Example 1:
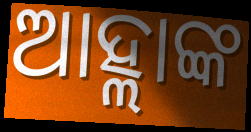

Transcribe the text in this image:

ଆହ୍ଲାଙ୍କ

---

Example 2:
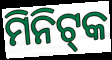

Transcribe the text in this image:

ମିନିଟ୍‍କ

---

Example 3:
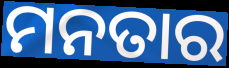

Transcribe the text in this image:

ମନତାର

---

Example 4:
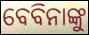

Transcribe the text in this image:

ବେବିନାଙ୍କୁ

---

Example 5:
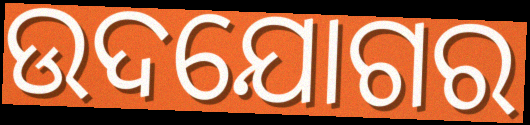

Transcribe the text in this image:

ଉଦଯୋଗର